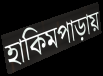
হাকিমপাড়ায়